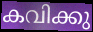
കവിക്കു